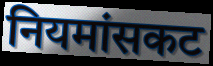
नियमांसकट